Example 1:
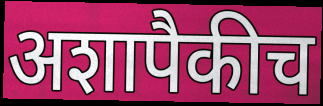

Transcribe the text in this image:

अशापैकीच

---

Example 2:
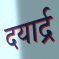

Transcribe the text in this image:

दयार्द्र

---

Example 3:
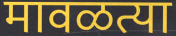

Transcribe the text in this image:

मावळत्या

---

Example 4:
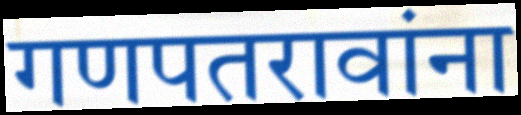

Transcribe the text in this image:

गणपतरावांना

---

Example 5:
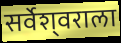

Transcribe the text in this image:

सर्वेश्वराला